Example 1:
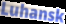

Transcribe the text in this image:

Luhansk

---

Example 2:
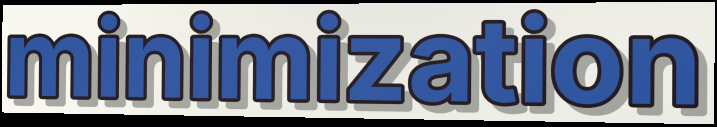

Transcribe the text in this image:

minimization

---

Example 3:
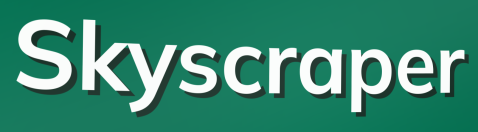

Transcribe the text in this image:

Skyscraper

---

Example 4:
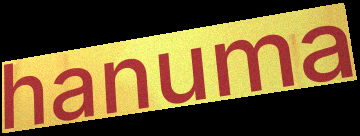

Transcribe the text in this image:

hanuma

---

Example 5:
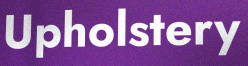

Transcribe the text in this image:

Upholstery